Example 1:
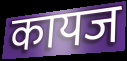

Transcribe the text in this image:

कायज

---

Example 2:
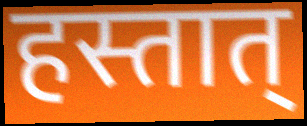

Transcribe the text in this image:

हस्तात्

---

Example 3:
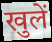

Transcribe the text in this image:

खुलें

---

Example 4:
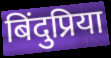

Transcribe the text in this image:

बिंदुप्रिया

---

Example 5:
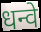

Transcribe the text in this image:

धन्वे